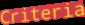
Criteria